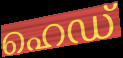
ഹെഡ്